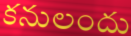
కనులందు